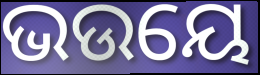
ଭଉୟେ